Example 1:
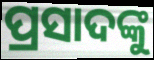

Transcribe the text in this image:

ପ୍ରସାଦଙ୍କୁ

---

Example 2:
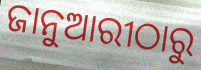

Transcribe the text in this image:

ଜାନୁଆରୀଠାରୁ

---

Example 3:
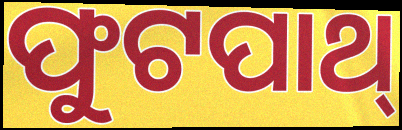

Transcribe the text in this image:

ଫୁଟପାଥ୍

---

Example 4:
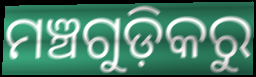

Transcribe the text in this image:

ମଞ୍ଚଗୁଡ଼ିକରୁ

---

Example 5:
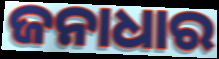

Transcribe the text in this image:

ଜନାଧାର